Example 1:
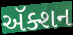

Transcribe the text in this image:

ઍક્શન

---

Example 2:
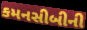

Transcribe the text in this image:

કમનસીબીની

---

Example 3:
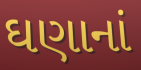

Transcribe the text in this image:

ઘણાનાં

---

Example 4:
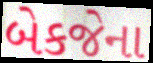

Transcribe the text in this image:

બેકજેના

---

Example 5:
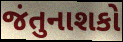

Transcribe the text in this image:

જંતુનાશકો